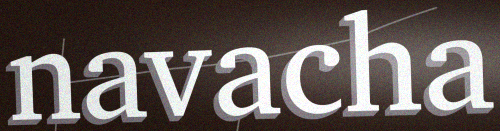
navacha